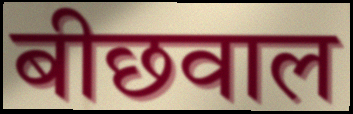
बीछवाल